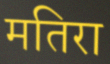
मतिरा